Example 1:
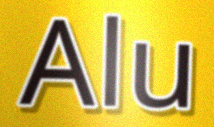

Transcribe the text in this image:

Alu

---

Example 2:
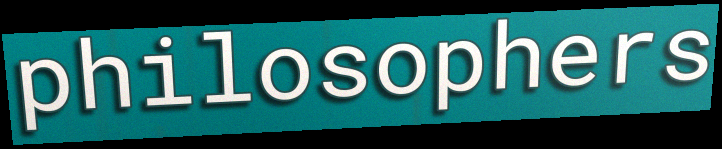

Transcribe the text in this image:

philosophers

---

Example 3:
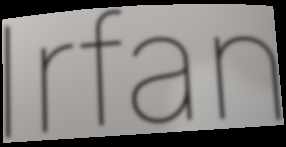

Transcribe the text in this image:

Irfan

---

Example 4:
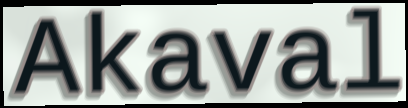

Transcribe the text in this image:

Akaval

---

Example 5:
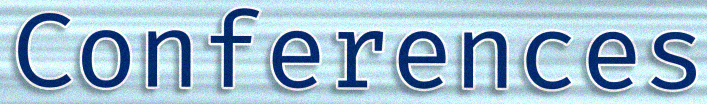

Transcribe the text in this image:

Conferences